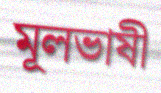
মূলভাষী